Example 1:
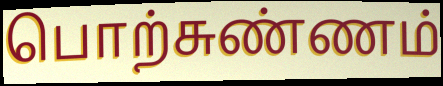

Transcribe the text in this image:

பொற்சுண்ணம்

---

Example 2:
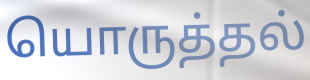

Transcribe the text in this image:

யொருத்தல்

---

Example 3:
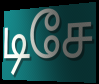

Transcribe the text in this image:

டிசே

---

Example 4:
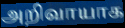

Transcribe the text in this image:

அறிவாயாக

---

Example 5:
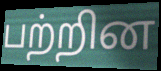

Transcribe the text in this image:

பற்றின